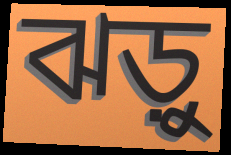
ঝড়ু